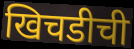
खिचडीची